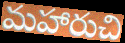
మహారుచి